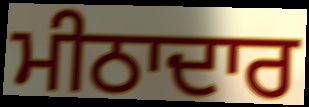
ਮੀਠਾਦਾਰ